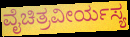
ವೈಚಿತ್ರವೀರ್ಯಸ್ಯ